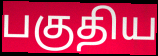
பகுதிய